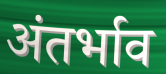
अंतर्भाव